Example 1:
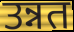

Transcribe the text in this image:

उन्नत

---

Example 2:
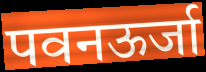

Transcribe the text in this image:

पवनऊर्जा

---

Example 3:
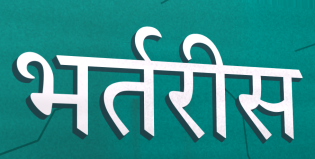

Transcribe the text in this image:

भर्तरीस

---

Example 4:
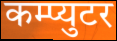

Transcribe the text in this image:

कम्प्युटर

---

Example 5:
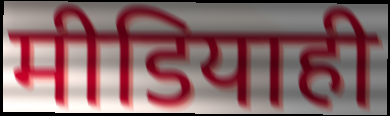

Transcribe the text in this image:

मीडियाही